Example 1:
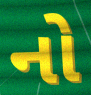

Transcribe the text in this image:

નો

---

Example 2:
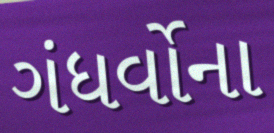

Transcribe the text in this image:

ગંધર્વોના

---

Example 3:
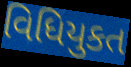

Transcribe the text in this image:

વિધિયુકત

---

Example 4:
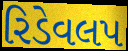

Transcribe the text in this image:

રિડેવલપ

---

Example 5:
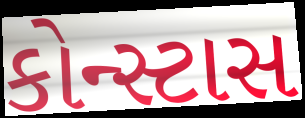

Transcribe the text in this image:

કોન્સ્ટાસ